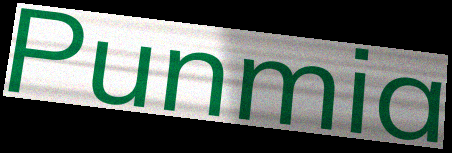
Punmia